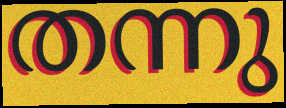
തന്നു